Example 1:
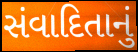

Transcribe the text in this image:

સંવાદિતાનું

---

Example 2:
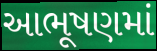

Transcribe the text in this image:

આભૂષણમાં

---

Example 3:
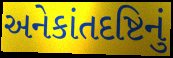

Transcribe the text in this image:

અનેકાંતદષ્ટિનું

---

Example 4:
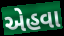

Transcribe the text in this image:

એહવા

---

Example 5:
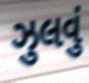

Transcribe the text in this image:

ઝુલવું